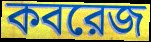
কবরেজ